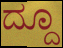
ದ್ದೂ